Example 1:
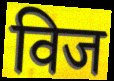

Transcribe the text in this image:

विज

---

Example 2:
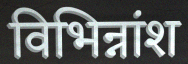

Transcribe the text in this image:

विभिन्नांश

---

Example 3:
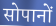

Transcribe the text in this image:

सोपानों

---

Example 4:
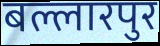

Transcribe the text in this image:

बल्लारपुर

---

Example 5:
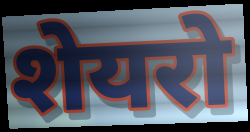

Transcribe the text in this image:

शेयरो